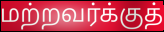
மற்றவர்க்குத்